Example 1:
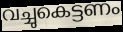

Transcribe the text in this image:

വച്ചുകെട്ടണം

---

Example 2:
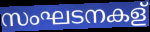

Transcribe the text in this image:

സംഘടനകള്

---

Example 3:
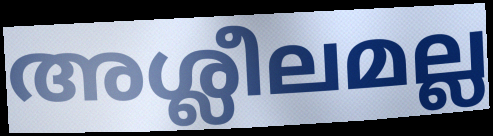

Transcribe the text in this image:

അശ്ലീലമല്ല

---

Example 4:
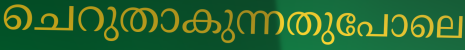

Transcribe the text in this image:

ചെറുതാകുന്നതുപോലെ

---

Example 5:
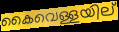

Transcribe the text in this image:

കൈവെള്ളയില്